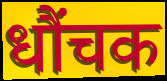
धौंचक